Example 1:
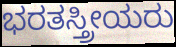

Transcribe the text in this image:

ಭರತಸ್ತ್ರೀಯರು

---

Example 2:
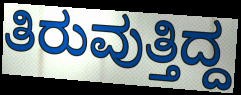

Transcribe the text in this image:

ತಿರುವುತ್ತಿದ್ದ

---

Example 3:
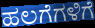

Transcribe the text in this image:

ಹಲಗೆಗಳಿಗೆ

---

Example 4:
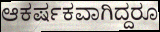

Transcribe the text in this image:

ಆಕರ್ಷಕವಾಗಿದ್ದರೂ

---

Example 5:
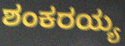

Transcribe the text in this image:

ಶಂಕರಯ್ಯ